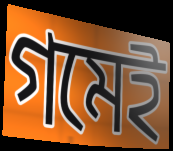
গমেই